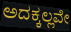
ಅದಕ್ಕಲ್ಲವೇ